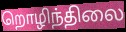
றொழிந்திலை